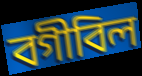
বগীবিল